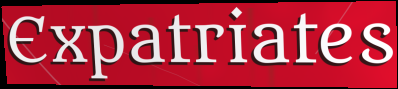
Expatriates